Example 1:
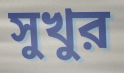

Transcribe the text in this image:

সুখুর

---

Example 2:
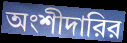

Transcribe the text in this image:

অংশীদারির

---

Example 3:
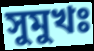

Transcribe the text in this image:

সুমুখঃ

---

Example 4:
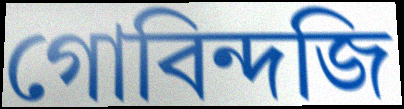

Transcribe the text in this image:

গোবিন্দজি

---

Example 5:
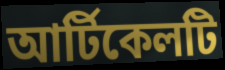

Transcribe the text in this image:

আর্টিকেলটি